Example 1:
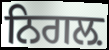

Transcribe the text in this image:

ਨਿਗਲ਼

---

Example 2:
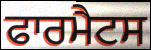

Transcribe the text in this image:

ਫਾਰਮੈਟਸ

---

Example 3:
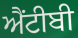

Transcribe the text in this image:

ਐਂਟੀਬੀ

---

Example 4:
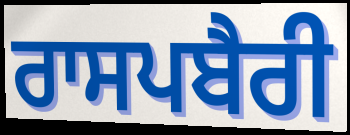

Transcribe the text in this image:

ਰਾਸਪਬੈਰੀ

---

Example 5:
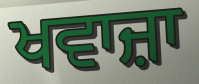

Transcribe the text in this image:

ਖਵਾਜ਼ਾ